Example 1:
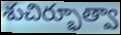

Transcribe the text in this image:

శుచిర్భూత్వా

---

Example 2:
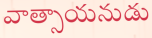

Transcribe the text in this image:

వాత్సాయనుడు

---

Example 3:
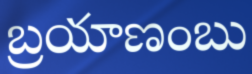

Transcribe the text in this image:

బ్రయాణంబు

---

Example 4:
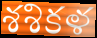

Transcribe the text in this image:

శశికళ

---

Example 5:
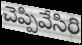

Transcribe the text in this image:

చెప్పివేసిరి